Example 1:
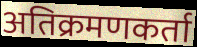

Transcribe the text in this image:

अतिक्रमणकर्ता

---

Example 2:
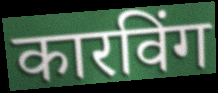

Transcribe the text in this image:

कारविंग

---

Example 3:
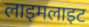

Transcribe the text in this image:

लाइमलाइट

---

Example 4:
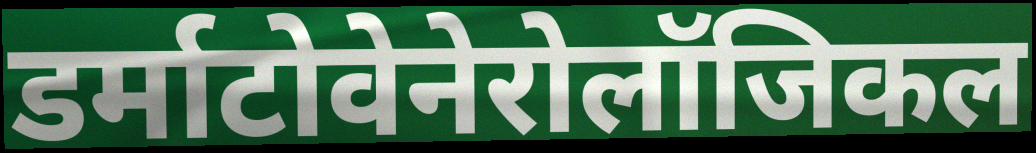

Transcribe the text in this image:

डर्माटोवेनेरोलॉजिकल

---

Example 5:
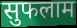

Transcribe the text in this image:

सुफलाम